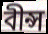
বীন্স